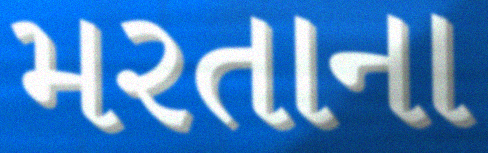
મરતાના